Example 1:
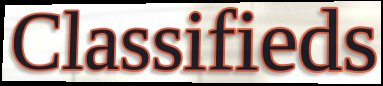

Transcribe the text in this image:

Classifieds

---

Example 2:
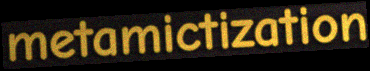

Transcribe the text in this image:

metamictization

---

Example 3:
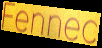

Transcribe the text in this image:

Fennec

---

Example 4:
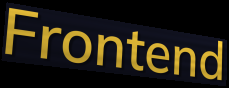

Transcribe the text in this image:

Frontend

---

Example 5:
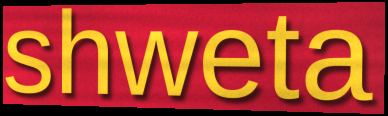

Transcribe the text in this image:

shweta